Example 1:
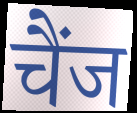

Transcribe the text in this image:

चैंज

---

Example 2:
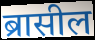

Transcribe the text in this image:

ब्रासील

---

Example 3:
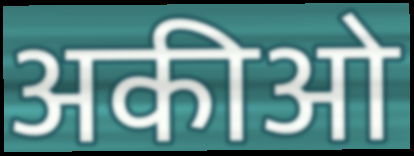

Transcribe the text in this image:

अकीओ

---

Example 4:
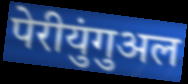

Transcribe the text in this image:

पेरीयुंगुअल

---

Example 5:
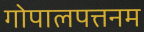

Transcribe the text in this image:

गोपालपत्तनम